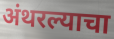
अंथरल्याचा